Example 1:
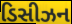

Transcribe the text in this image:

ડિસીઝન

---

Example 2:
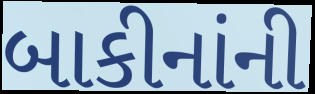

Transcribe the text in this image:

બાકીનાંની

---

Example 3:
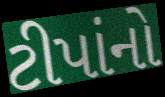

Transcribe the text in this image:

ટીપાંનો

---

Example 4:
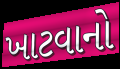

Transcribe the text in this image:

ખાટવાનો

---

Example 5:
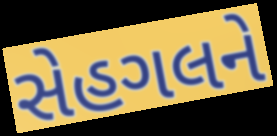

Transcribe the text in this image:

સેહગલને